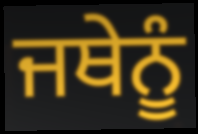
ਜਥੇਨੂੰ